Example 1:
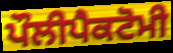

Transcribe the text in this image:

ਪੌਲੀਪੈਕਟੋਮੀ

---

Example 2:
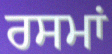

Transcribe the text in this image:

ਰਸਮਾਂ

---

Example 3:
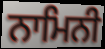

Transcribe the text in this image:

ਨਾਮਿਨੀ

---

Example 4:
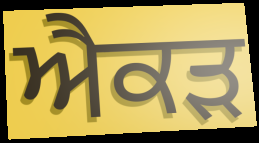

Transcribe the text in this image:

ਐਕੜ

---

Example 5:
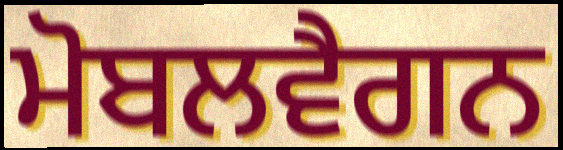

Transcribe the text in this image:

ਮੋਬਲਵੈਗਨ